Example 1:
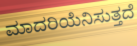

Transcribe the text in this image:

ಮಾದರಿಯೆನಿಸುತ್ತದೆ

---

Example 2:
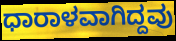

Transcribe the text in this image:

ಧಾರಾಳವಾಗಿದ್ದವು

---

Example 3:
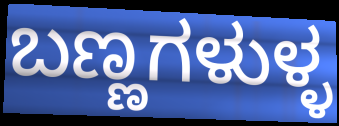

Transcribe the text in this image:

ಬಣ್ಣಗಳುಳ್ಳ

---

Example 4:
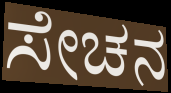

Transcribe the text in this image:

ಸೇಚನ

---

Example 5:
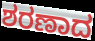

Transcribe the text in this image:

ಶರಣಾದ